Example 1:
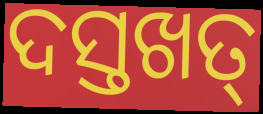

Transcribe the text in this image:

ଦସ୍ତଖତ୍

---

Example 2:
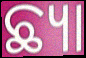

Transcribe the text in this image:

ଛ୍ୟା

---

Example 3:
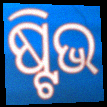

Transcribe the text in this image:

ଷ୍ଟିଭ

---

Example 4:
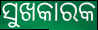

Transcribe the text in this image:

ସୁଖକାରକ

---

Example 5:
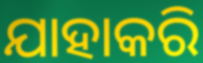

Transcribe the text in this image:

ଯାହାକରି